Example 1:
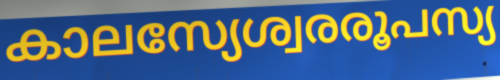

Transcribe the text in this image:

കാലസ്യേശ്വരരൂപസ്യ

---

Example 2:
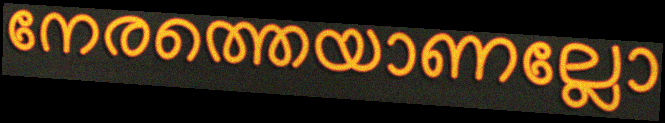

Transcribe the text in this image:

നേരത്തെയാണല്ലോ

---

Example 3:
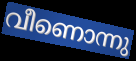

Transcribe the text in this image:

വീണൊന്നു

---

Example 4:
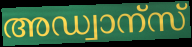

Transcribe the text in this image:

അഡ്വാന്സ്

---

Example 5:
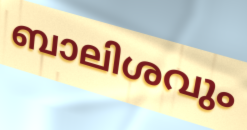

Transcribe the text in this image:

ബാലിശവും